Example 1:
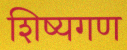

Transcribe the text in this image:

शिष्यगण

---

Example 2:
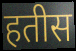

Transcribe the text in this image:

हतीस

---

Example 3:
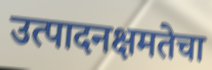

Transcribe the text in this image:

उत्पादनक्षमतेचा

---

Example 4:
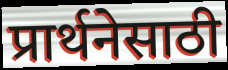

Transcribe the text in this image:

प्रार्थनेसाठी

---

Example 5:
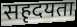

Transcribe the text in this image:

सहृदयता